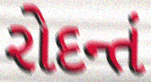
રોદન્તં